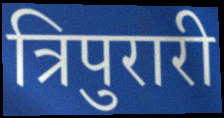
त्रिपुरारी